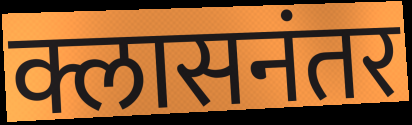
क्लासनंतर